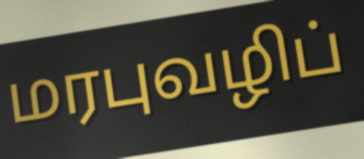
மரபுவழிப்